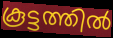
കൂട്ടത്തിൽ